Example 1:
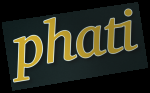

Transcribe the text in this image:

phati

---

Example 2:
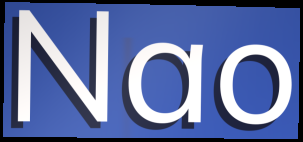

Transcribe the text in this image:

Nao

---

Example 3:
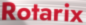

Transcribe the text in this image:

Rotarix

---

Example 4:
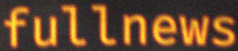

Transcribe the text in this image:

fullnews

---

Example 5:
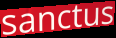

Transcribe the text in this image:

sanctus